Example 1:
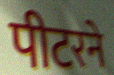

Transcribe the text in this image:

पीटरने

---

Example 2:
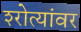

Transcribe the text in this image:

श्रोत्यांवर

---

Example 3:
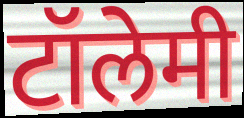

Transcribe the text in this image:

टॉलेमी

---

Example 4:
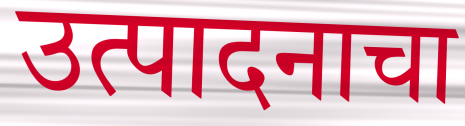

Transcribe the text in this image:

उत्पादनाचा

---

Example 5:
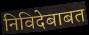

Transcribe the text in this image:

निविदेबाबत